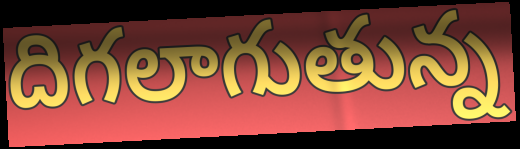
దిగలాగుతున్న